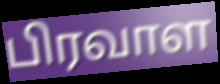
பிரவாள